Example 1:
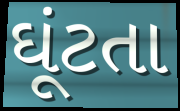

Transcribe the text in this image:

ઘૂંટતા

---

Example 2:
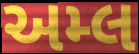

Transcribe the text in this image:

અમ્લ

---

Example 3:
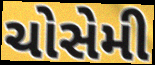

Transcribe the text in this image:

ચોસેમી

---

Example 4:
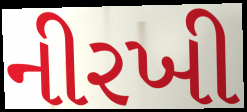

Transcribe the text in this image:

નીરખી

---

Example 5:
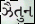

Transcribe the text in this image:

ઝૈતુન